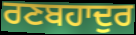
ਰਣਬਹਾਦੁਰ